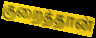
குறைத்தான்